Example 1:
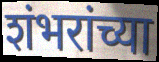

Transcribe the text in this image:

शंभरांच्या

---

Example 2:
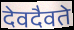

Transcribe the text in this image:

देवदैवते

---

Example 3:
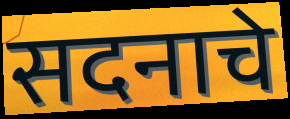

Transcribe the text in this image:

सदनाचे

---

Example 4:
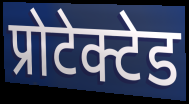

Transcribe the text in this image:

प्रोटेक्टेड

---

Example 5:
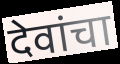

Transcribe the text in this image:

देवांचा